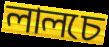
লালচে